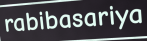
rabibasariya